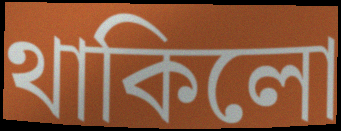
থাকিলো